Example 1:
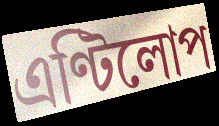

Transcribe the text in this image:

এণ্টিলোপ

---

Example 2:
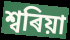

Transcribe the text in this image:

শ্বৰিয়া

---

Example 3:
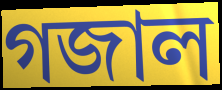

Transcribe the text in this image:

গজাল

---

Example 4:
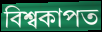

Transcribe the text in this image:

বিশ্বকাপত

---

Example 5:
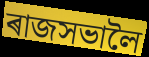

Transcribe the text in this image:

ৰাজসভালৈ